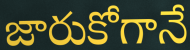
జారుకోగానే